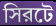
সিরটে